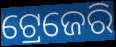
ଟ୍ରେଜେରି